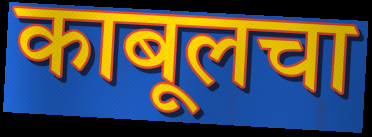
काबूलचा